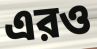
এরও